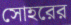
সোহরের